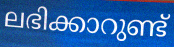
ലഭിക്കാറുണ്ട്